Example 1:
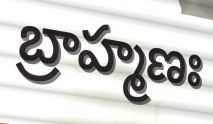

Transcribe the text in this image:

బ్రాహ్మణః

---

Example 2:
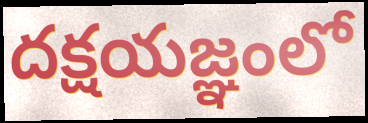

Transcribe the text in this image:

దక్షయజ్ఞంలో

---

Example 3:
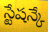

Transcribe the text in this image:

స్టేషన్కే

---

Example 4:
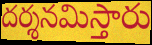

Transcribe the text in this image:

దర్శనమిస్తారు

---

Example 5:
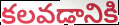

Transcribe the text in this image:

కలవడానికి